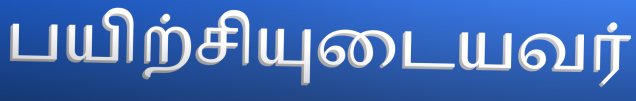
பயிற்சியுடையவர்